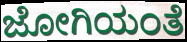
ಜೋಗಿಯಂತೆ